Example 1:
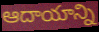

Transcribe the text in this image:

ఆదాయాన్ని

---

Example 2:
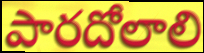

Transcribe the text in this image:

పారదోలాలి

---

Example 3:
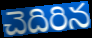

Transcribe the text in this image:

చెదిరిన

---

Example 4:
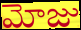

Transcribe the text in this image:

మోజు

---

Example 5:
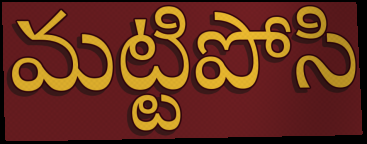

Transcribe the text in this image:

మట్టిపోసి